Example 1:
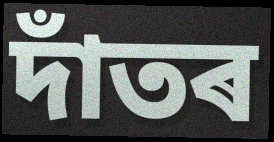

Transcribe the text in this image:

দাঁতৰ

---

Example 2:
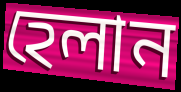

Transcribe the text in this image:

হেলান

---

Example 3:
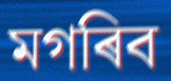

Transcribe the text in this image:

মগৰিব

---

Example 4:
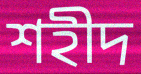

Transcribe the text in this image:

শহীদ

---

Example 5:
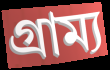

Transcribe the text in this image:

গ্ৰাম্য